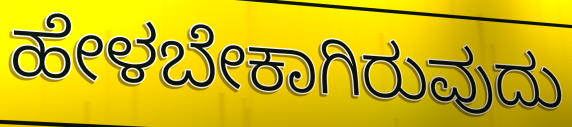
ಹೇಳಬೇಕಾಗಿರುವುದು